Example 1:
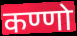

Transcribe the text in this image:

कण्णो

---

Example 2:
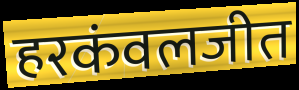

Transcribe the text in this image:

हरकंवलजीत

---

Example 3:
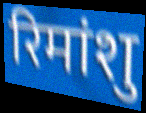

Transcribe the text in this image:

रिमांशु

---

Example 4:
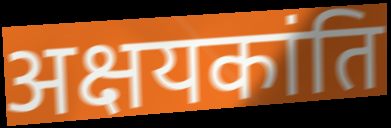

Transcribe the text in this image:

अक्षयकांति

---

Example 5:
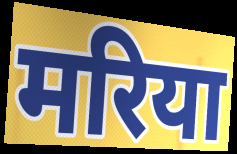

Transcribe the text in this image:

मरिया